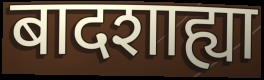
बादशाह्या